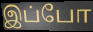
இப்போ